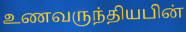
உணவருந்தியபின்